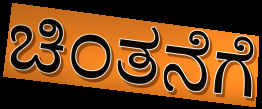
ಚಿಂತನೆಗೆ